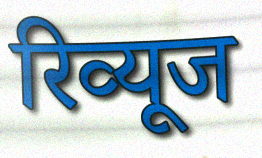
रिव्‍यूज